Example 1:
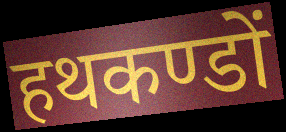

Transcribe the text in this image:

हथकण्डों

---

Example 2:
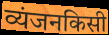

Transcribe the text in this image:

व्यंजनकिसी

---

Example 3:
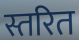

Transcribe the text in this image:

स्तरित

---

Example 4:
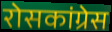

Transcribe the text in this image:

रोसकांग्रेस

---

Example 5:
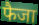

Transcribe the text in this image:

फैजा